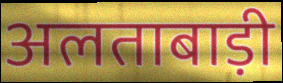
अलताबाड़ी